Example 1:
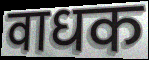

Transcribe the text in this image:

वाधक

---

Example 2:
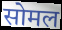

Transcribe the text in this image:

सोमल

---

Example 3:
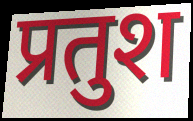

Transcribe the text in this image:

प्रतुश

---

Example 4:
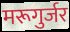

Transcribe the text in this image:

मरूगुर्जर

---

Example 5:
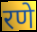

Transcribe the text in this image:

रणे